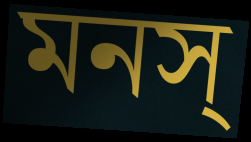
মনস্